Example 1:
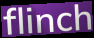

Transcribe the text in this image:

flinch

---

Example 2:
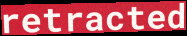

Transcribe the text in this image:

retracted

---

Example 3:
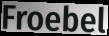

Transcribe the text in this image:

Froebel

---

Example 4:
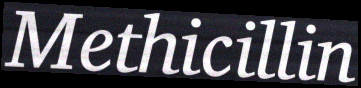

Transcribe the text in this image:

Methicillin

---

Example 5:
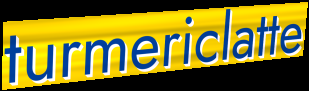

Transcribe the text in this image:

turmericlatte